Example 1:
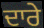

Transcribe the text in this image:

ਦਾਰੇ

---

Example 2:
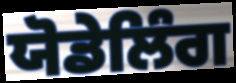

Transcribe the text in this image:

ਯੋਡੇਲਿੰਗ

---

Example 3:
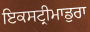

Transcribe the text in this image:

ਇਕਸਟ੍ਰੀਮਾਡੁਰਾ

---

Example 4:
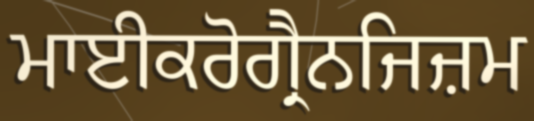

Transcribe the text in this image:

ਮਾਈਕਰੋਗ੍ਰੈਨਜਿਜ਼ਮ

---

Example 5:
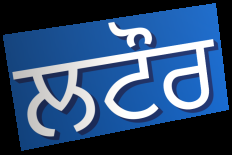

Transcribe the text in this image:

ਲਟੌਰ